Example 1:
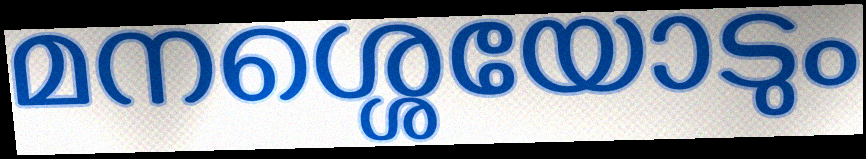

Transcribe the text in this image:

മനശ്ശെയോടും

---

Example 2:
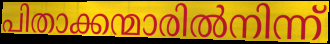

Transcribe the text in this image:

പിതാക്കന്മാരിൽനിന്ന്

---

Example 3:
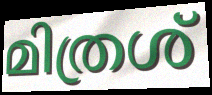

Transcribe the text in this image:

മിത്രശ്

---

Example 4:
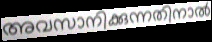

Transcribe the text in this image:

അവസാനിക്കുന്നതിനാൽ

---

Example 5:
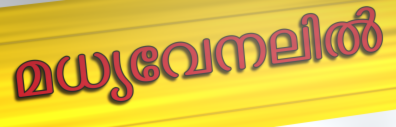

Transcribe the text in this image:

മധ്യവേനലിൽ